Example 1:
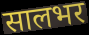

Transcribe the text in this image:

सालभर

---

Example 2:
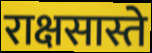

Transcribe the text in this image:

राक्षसास्ते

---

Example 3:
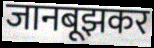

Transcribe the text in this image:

जानबूझकर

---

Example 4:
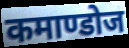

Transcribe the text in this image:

कमाण्डोज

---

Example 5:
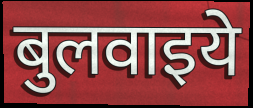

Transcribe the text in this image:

बुलवाइये